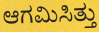
ಆಗಮಿಸಿತ್ತು